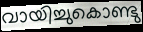
വായിച്ചുകൊണ്ടു